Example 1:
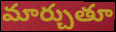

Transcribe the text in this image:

మార్చుతూ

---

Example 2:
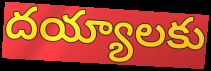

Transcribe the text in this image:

దయ్యాలకు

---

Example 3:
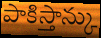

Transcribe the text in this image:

పాకిస్తాన్కు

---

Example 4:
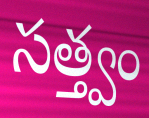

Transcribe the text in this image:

సత్త్వం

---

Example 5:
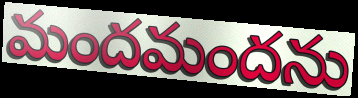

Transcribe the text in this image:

మందమందను